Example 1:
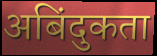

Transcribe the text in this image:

अबिंदुकता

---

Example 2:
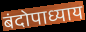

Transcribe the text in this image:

बंदोपाध्‍याय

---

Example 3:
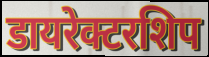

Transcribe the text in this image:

डायरेक्टरशिप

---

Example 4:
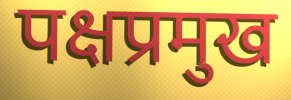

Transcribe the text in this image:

पक्षप्रमुख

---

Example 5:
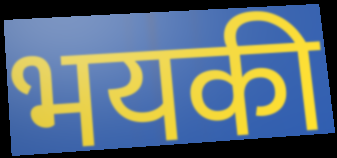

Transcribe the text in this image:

भयकी